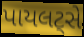
પાયલટ્સે